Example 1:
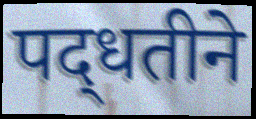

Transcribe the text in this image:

पद्‍धतीने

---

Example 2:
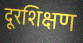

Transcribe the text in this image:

दूरशिक्षण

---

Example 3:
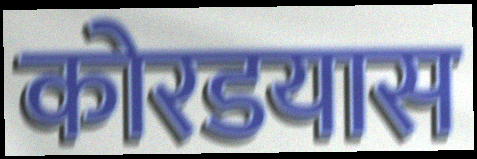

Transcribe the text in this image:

कोरडयास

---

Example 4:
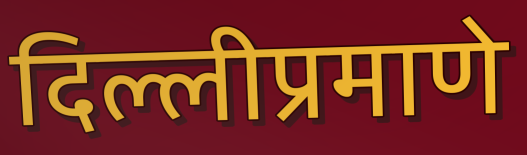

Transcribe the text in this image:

दिल्लीप्रमाणे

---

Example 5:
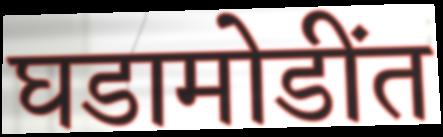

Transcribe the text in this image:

घडामोडींत